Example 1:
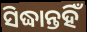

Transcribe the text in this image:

ସିଦ୍ଧାନ୍ତହିଁ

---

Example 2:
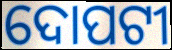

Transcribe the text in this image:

ଦୋପଟୀ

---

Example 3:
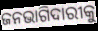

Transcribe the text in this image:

ଜନଭାଗିଦାରୀକୁ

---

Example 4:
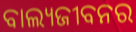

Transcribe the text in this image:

ବାଲ୍ୟଜୀବନର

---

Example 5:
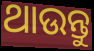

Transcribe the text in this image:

ଥାଉନ୍ତୁ